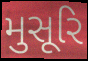
મુસૂરિ